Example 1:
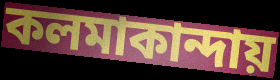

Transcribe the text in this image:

কলমাকান্দায়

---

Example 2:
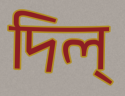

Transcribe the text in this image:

দিল্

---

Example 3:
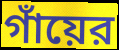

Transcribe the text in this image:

গাঁয়ের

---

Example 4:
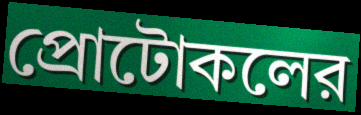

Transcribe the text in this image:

প্রোটোকলের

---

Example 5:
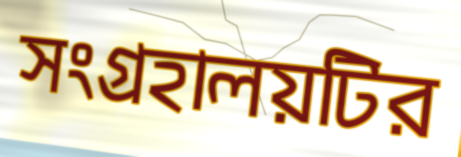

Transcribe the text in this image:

সংগ্রহালয়টির